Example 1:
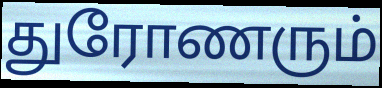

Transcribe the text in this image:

துரோணரும்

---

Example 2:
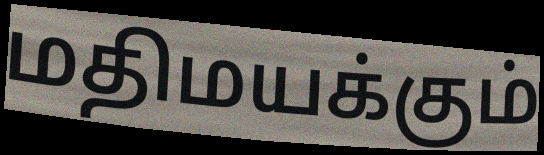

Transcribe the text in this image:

மதிமயக்கும்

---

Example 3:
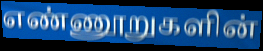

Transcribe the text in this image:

எண்ணூறுகளின்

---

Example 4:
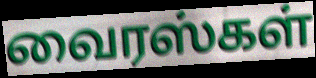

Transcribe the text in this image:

வைரஸ்கள்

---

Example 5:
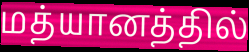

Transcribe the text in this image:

மத்யானத்தில்